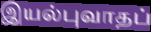
இயல்புவாதப்